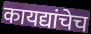
कायद्यांचेच